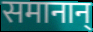
समानान्